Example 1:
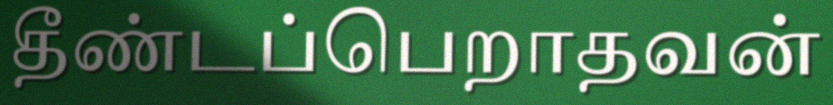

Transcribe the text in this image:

தீண்டப்பெறாதவன்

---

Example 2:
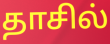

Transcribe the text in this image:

தாசில்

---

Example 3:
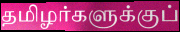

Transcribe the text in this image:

தமிழர்களுக்குப்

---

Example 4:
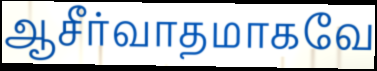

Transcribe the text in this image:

ஆசீர்வாதமாகவே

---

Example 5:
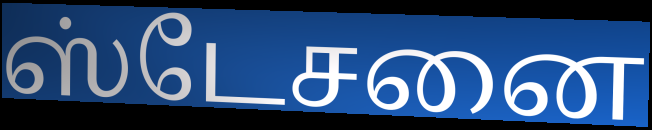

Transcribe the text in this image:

ஸ்டேசனை